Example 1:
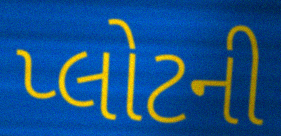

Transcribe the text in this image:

પ્લોટની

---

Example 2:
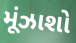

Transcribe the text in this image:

મૂંઝાશો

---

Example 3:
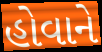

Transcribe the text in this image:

હોવાને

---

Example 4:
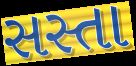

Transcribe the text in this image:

સસ્તા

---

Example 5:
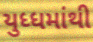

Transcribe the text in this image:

યુધ્ધમાંથી